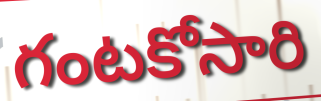
గంటకోసారి